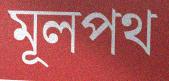
মূলপথ